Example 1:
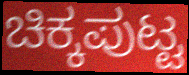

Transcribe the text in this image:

ಚಿಕ್ಕಪುಟ್ಟ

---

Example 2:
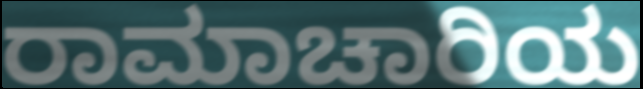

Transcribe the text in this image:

ರಾಮಾಚಾರಿಯ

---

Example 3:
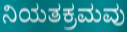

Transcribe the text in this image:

ನಿಯತಕ್ರಮವು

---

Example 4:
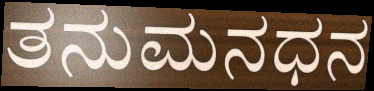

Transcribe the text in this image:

ತನುಮನಧನ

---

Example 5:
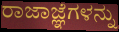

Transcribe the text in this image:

ರಾಜಾಜ್ಞೆಗಳನ್ನು